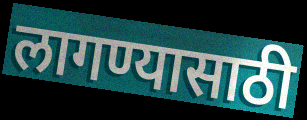
लागण्यासाठी